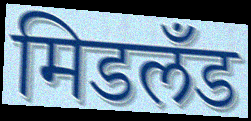
मिडलँड